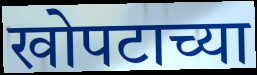
खोपटाच्या